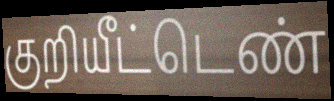
குறியீட்டெண்